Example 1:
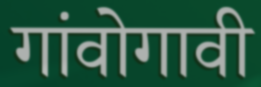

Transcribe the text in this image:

गांवोगावी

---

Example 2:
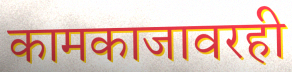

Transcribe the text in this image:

कामकाजावरही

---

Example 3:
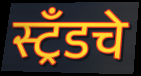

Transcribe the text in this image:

स्ट्रँडचे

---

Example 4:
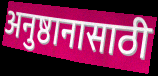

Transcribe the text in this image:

अनुष्ठानासाठी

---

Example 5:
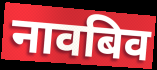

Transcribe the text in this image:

नावबिव